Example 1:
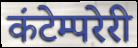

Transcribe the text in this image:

कंटेम्परेरी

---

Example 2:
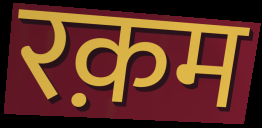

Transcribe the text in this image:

रक़म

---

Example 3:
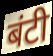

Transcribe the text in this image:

बंटी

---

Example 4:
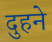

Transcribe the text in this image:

दुहने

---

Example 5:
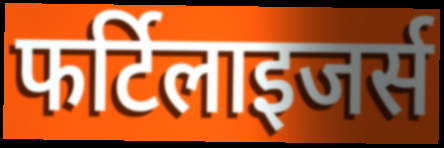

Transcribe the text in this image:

फर्टिलाइजर्स